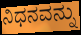
ನಿಧನವನ್ನು